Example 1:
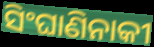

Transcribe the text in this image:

ସିଂଘାଣିନାକୀ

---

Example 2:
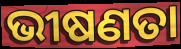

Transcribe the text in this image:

ଭୀଷଣତା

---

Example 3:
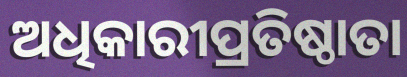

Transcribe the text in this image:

ଅଧିକାରୀପ୍ରତିଷ୍ଠାତା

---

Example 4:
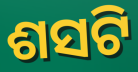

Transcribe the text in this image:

ଶସଟି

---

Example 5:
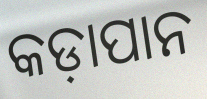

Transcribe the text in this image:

କଡ଼ାପାନ